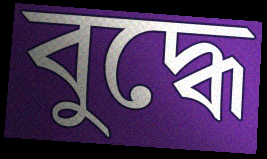
বুদ্ধে